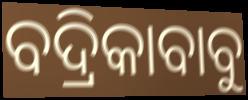
ବଦ୍ରିକାବାବୁ